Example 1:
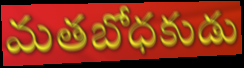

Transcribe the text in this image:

మతబోధకుడు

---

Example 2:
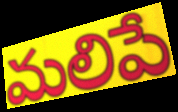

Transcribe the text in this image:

మలిపే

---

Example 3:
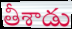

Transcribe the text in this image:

తీశాడు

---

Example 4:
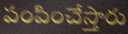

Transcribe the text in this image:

పంపించేస్తారు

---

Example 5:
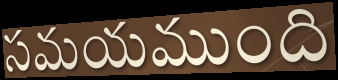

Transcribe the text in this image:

సమయముంది